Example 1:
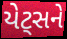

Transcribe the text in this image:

યેટ્સને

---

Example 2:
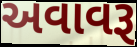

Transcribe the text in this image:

અવાવરૂ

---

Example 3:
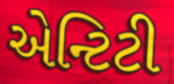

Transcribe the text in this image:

એન્ટિટી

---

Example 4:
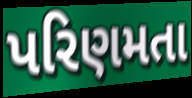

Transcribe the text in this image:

પરિણમતા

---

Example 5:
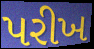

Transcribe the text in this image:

પરીખ